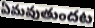
ఏమవుతుందట